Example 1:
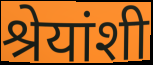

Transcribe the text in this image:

श्रेयांशी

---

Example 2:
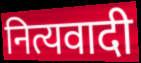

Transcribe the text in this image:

नित्यवादी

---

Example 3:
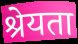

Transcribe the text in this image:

श्रेयता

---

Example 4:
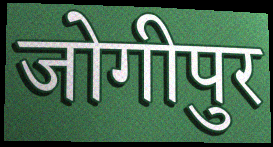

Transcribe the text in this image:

जोगीपुर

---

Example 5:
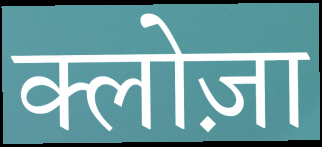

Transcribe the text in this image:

क्लोज़ा